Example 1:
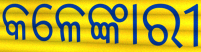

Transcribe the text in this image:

କଳେଙ୍କାରୀ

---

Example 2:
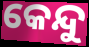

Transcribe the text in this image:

କେନ୍ଦୁ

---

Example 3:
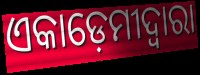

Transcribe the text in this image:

ଏକାଡ଼େମୀଦ୍ଵାରା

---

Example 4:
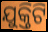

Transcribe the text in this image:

ଯୁକ୍ତିଟି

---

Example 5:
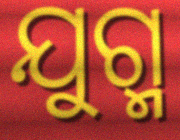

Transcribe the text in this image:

ଯୁଗ୍ମ